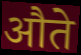
औते